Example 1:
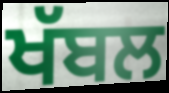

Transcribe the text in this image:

ਖੱਬਲ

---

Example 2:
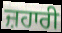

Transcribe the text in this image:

ਜ਼ਹਾਰੀ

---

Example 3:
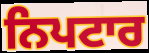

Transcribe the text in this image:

ਨਿਪਟਾਰ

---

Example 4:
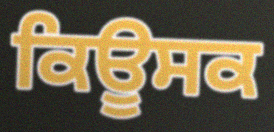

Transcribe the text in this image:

ਕਿਊਸਕ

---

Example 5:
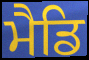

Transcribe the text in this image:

ਮੈਡਿ